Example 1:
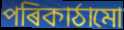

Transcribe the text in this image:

পৰিকাঠামো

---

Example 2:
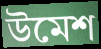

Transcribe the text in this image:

উমেশ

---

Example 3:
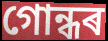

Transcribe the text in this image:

গোন্ধৰ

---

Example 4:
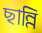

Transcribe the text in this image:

ছান্নি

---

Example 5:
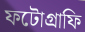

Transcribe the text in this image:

ফটোগ্ৰাফি